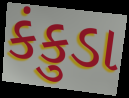
કંકુડા